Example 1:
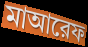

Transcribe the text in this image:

মাআরেফ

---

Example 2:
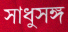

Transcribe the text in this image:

সাধুসঙ্গ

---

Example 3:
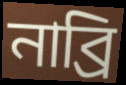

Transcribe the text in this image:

নাব্রি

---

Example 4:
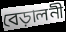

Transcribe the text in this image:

বেড়ালনী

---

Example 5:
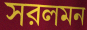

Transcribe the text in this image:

সরলমন